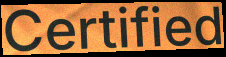
Certified